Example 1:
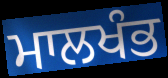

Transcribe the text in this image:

ਮਾਲਖੰਭ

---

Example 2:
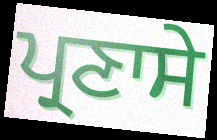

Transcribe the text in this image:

ਪ੍ਰਣਾਸੇ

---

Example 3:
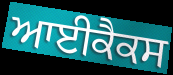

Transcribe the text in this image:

ਆਈਕੈਕਸ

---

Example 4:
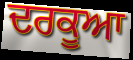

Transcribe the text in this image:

ਦਰਕੂਆ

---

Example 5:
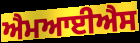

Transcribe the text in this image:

ਐਮਆਈਐਸ